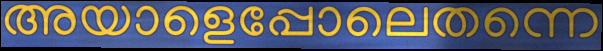
അയാളെപ്പോലെതന്നെ